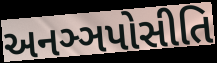
અનઞ્ઞપોસીતિ